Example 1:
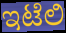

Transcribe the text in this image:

ಇಟೆಲಿ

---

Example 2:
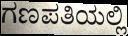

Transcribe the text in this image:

ಗಣಪತಿಯಲ್ಲಿ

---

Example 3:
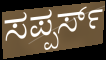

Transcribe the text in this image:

ಸಪ್ಪರ್ಸ್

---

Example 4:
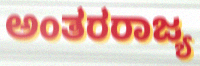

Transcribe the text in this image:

ಅಂತರರಾಜ್ಯ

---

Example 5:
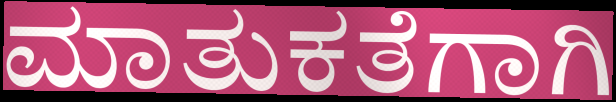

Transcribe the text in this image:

ಮಾತುಕತೆಗಾಗಿ